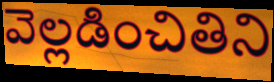
వెల్లడించితిని